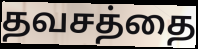
தவசத்தை